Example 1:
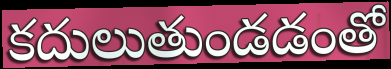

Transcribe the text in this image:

కదులుతుండడంతో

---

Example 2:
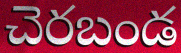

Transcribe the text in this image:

చెరబండ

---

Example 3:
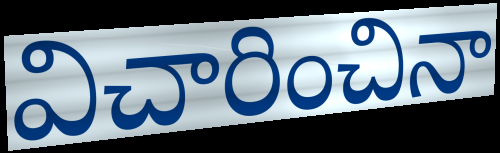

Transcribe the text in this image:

విచారించినా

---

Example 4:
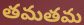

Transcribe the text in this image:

తమతమ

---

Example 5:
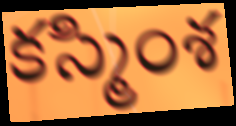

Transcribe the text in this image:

కస్మింశ